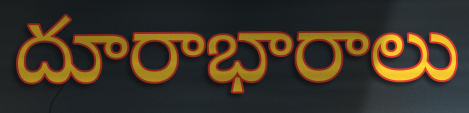
దూరాభారాలు